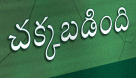
చక్కబడింది